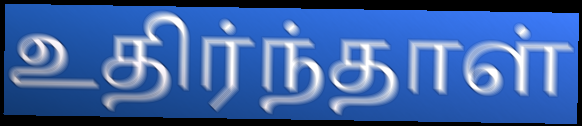
உதிர்ந்தாள்